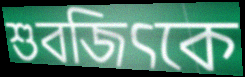
শুবজিৎকে